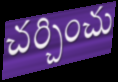
చర్చించు